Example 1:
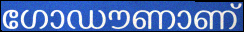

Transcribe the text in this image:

ഗോഡൗണാണ്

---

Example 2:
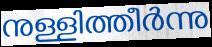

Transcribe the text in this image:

നുള്ളിത്തീർന്നു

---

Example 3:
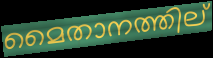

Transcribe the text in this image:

മൈതാനത്തില്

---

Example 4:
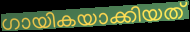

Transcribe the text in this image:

ഗായികയാക്കിയത്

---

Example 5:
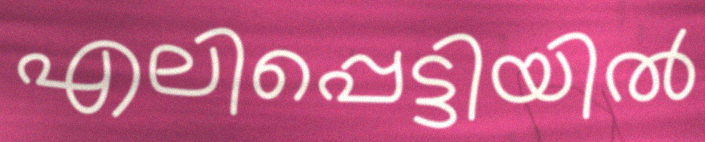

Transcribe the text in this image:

എലിപ്പെട്ടിയിൽ